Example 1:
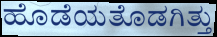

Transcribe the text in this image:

ಹೊಡೆಯತೊಡಗಿತ್ತು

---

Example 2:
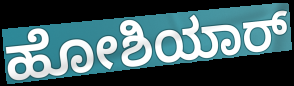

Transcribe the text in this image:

ಹೋಶಿಯಾರ್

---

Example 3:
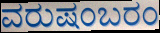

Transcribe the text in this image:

ವರುಷಂಬರಂ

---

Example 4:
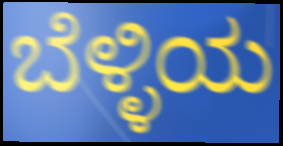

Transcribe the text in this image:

ಬೆಳ್ಳಿಯ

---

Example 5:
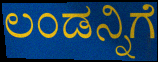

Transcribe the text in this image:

ಲಂಡನ್ನಿಗೆ